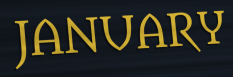
JANUARY